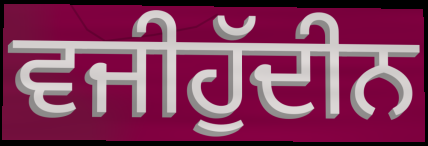
ਵਜੀਹੁੱਦੀਨ